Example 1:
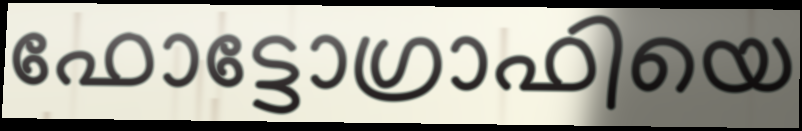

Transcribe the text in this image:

ഫോട്ടോഗ്രാഫിയെ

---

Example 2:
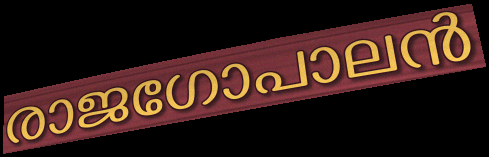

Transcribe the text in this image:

രാജഗോപാലൻ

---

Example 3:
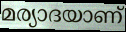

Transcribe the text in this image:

മര്യാദയാണ്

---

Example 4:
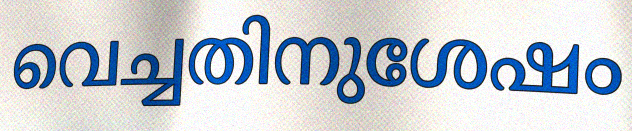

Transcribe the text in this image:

വെച്ചതിനുശേഷം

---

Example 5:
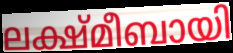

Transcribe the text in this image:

ലക്ഷ്മീബായി